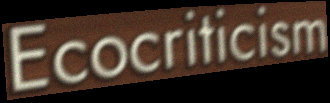
Ecocriticism